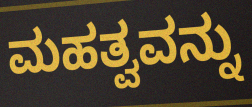
ಮಹತ್ವವನ್ನು